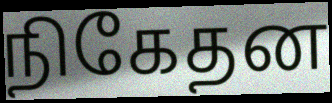
நிகேதன